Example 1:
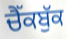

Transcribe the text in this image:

ਚੈੱਕਬੁੱਕ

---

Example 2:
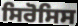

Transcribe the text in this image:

ਸਿਰੋਸਿਸ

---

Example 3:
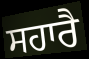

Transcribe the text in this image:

ਸਹਾਰੈ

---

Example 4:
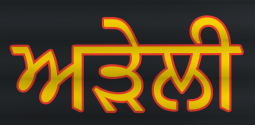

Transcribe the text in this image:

ਅੜੇਲੀ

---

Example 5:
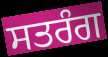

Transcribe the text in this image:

ਸਤਰੰਗ